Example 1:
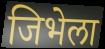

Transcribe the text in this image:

जिभेला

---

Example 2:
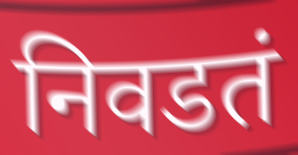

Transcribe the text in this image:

निवडतं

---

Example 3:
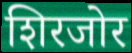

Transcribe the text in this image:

शिरजोर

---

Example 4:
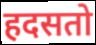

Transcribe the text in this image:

हदसतो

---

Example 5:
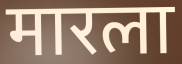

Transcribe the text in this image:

मारला